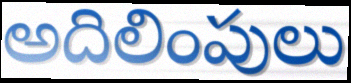
అదిలింపులు